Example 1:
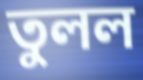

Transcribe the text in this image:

তুলল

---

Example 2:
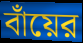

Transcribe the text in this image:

বাঁয়ের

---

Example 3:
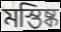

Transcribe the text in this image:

মস্তিষ্ক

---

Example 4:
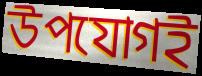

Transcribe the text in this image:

উপযোগই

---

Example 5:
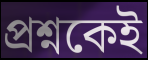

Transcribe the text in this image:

প্রশ্নকেই